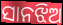
ସାନଝିଅ